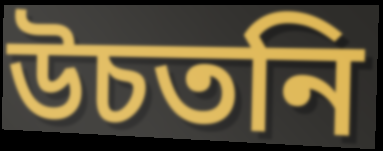
উচতনি